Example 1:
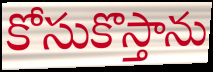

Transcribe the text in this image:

కోసుకొస్తాను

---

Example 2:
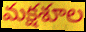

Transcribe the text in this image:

మక్షశూల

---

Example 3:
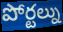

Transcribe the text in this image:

పోర్టల్ను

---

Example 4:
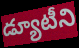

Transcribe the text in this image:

డ్యూటీని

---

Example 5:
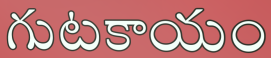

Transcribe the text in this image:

గుటకాయం